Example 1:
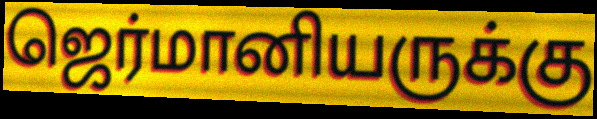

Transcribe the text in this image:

ஜெர்மானியருக்கு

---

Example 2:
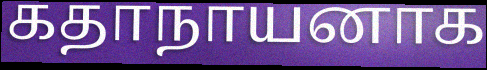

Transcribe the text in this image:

கதாநாயனாக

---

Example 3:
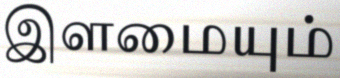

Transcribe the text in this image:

இளமையும்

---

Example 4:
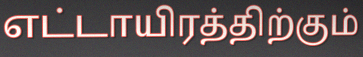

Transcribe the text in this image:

எட்டாயிரத்திற்கும்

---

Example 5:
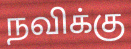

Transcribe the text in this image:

நவிக்கு